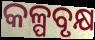
କଳ୍ପବୃକ୍ଷ